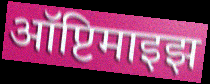
ऑप्टिमाइझ